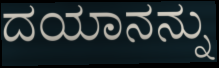
ದಯಾನನ್ನು